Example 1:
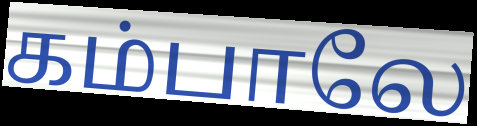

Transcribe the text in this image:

கம்பாலே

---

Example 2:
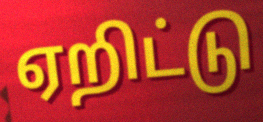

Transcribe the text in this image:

ஏறிட்டு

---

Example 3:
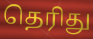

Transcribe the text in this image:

தெரிது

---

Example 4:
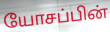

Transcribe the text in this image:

யோசப்பின்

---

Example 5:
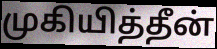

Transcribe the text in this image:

முகியித்தீன்